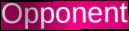
Opponent